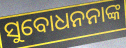
ସୁବୋଧନନାଙ୍କ